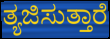
ತ್ಯಜಿಸುತ್ತಾರೆ